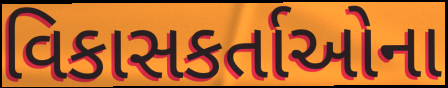
વિકાસકર્તાઓના